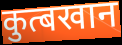
कुत्बखान